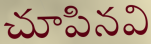
చూపినవి